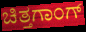
ಚಿತ್ತಗಾಂಗ್